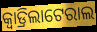
କ୍ୱାଡ୍ରିଲାଟେରାଲ